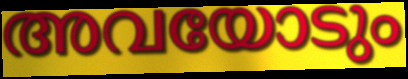
അവയോടും